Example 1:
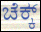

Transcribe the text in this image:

ಚೆಕ್ಕ್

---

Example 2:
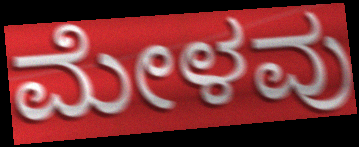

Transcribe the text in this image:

ಮೇಳವು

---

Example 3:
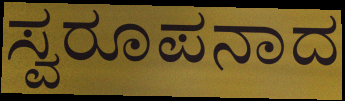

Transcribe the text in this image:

ಸ್ವರೂಪನಾದ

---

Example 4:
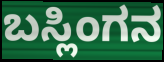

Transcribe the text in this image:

ಬಸ್ಲಿಂಗನ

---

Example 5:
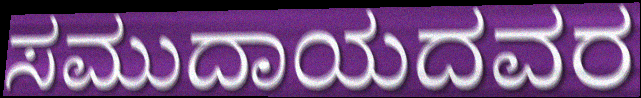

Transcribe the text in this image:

ಸಮುದಾಯದವರ